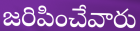
జరిపించేవారు